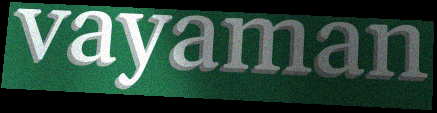
vayaman